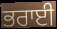
ਭਰਾਈ